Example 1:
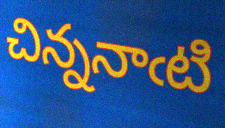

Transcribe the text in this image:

చిన్ననాఁటి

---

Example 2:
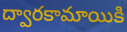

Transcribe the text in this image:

ద్వారకామాయికి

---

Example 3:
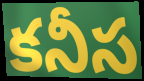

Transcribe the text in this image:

కనీస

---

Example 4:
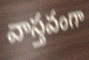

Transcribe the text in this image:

వాస్తవంగా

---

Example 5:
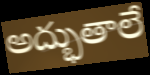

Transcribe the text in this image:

అద్భుతాలే